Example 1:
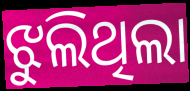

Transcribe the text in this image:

ଝୁଲିଥିଲା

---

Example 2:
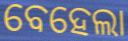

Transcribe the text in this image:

ବେହେଲା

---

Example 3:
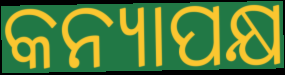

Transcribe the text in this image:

କନ୍ଯାପକ୍ଷ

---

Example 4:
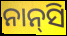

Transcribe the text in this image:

ନାନ୍‌ସି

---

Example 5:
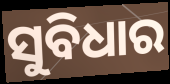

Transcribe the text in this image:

ସୁବିଧାର